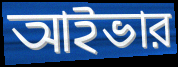
আইভার